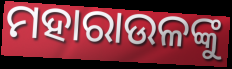
ମହାରାଉଳଙ୍କୁ